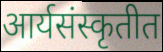
आर्यसंस्कृतीत